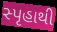
સ્પૃહાથી